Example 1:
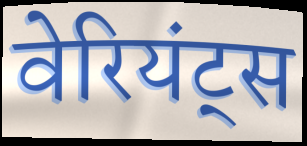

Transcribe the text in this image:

वेरियंट्स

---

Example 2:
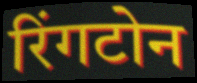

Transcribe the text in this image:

रिंगटोन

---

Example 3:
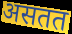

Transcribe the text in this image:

असतत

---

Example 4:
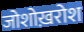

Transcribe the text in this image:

जोशोख़रोश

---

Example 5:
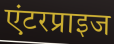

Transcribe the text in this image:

एंटरप्राइज